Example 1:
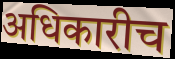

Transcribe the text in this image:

अधिकारीच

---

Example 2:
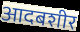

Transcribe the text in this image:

आदबशीर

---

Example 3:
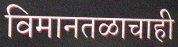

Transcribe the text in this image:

विमानतळाचाही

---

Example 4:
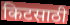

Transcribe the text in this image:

किटसाठी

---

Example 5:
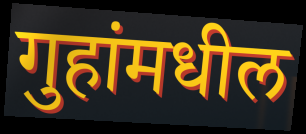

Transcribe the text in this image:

गुहांमधील